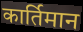
कार्तिमान